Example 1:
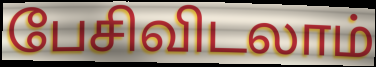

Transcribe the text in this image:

பேசிவிடலாம்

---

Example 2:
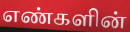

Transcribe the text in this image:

எண்களின்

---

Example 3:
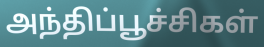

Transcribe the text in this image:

அந்திப்பூச்சிகள்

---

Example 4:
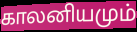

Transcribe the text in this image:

காலனியமும்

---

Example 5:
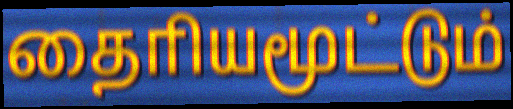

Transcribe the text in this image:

தைரியமூட்டும்